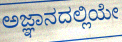
ಅಜ್ಞಾನದಲ್ಲಿಯೇ